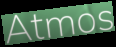
Atmos